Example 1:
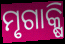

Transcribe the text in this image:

ମୃଗାକ୍ଷି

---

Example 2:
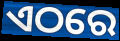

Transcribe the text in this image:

ଏଠରେ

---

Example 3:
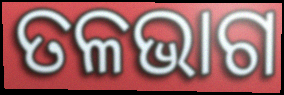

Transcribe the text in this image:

ତଳଭାଗ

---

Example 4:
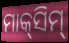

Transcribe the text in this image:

ମାକ୍‍ସିମ୍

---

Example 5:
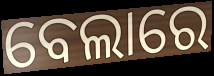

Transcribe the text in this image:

ବେଲାରେ